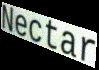
Nectar